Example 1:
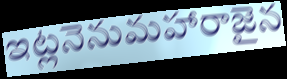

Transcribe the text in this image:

ఇట్లనెనుమహారాజైన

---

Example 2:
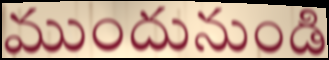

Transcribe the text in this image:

ముందునుండి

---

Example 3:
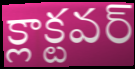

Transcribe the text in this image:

క్లాక్టవర్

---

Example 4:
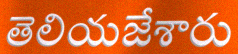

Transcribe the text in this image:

తెలియజేశారు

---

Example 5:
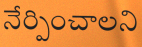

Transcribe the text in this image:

నేర్పించాలని